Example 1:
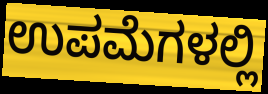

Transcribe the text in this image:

ಉಪಮೆಗಳಲ್ಲಿ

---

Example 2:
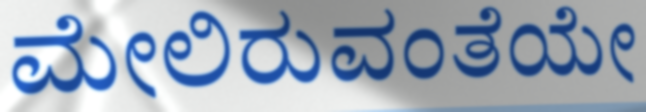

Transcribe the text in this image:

ಮೇಲಿರುವಂತೆಯೇ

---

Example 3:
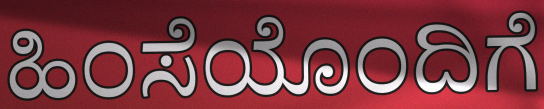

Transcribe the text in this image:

ಹಿಂಸೆಯೊಂದಿಗೆ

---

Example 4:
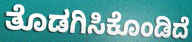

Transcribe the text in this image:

ತೊಡಗಿಸಿಕೊಂಡಿದೆ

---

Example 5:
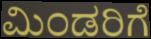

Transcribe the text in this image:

ಮಿಂಡರಿಗೆ